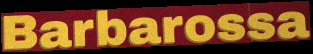
Barbarossa